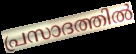
പ്രസാദത്തിൽ